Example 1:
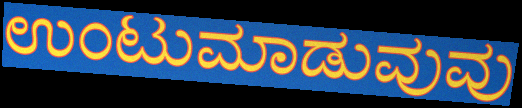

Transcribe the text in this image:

ಉಂಟುಮಾಡುವುವು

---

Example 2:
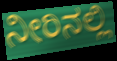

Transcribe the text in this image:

ನೀರಿನಲ್ಲಿ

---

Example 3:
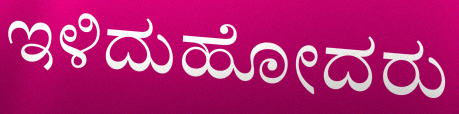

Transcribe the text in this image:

ಇಳಿದುಹೋದರು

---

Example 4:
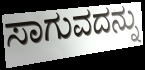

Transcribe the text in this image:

ಸಾಗುವದನ್ನು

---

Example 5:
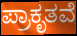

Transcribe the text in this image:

ಪ್ರಾಕೃತವೆ